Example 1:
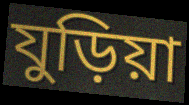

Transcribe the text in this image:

যুড়িয়া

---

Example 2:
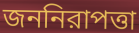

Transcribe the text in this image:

জননিরাপত্তা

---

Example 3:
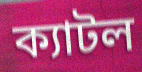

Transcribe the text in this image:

ক্যাটল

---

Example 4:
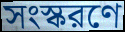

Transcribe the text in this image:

সংস্করণে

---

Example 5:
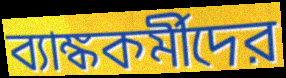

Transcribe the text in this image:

ব্যাঙ্ককর্মীদের